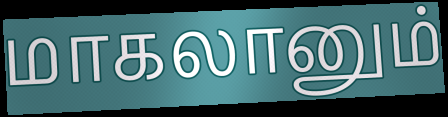
மாகலானும்